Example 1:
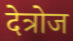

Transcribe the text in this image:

देत्रोज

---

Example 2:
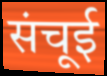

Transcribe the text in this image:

संचूई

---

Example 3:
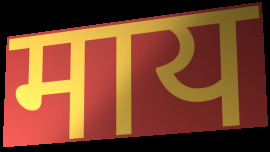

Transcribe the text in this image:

माय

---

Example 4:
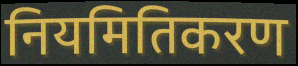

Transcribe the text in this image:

नियमितिकरण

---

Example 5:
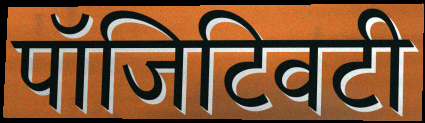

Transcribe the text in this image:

पॉजिटिवटी